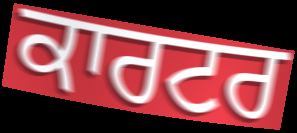
ਕਾਰਟਰ